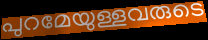
പുറമേയുള്ളവരുടെ